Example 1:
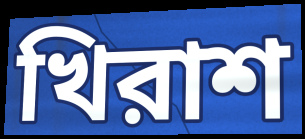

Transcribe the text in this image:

খিরাশ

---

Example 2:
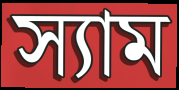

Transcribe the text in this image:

স্যাম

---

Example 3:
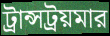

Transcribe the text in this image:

ট্রান্সট্রয়মার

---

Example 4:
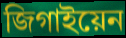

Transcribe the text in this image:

জিগাইয়েন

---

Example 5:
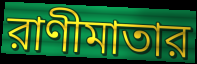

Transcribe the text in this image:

রাণীমাতার